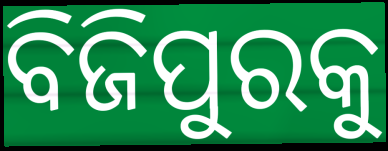
ବିଜିପୁରକୁ